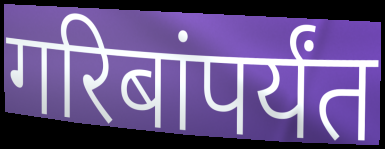
गरिबांपर्यंत